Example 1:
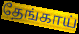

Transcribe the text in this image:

தேங்காய்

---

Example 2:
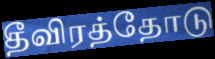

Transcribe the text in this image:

தீவிரத்தோடு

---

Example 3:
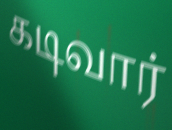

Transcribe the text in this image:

கடிவார்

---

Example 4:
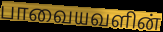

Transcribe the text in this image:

பாவையவளின்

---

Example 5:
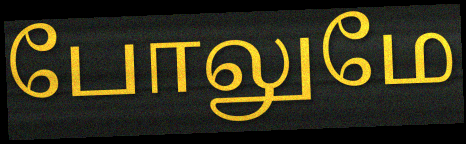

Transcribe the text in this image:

போலுமே